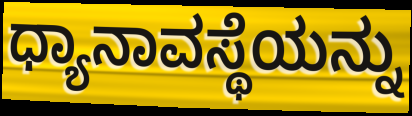
ಧ್ಯಾನಾವಸ್ಥೆಯನ್ನು